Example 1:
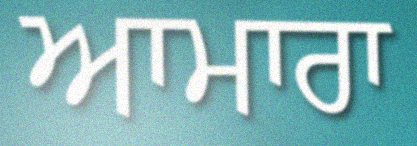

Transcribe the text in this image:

ਆਮਾਰਾ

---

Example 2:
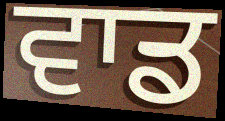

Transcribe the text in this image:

ਵਾਡ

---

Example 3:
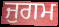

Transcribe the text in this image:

ਜੁਗਮ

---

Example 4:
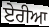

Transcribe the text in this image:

ਏਰੀਆ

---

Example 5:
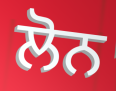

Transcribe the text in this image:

ਲੋਨ